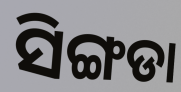
ସିଙ୍ଗଡା